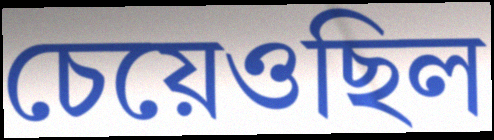
চেয়েওছিল